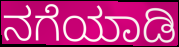
ನಗೆಯಾಡಿ